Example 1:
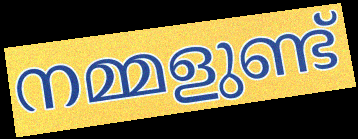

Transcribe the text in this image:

നമ്മളുണ്ട്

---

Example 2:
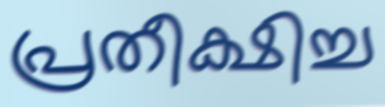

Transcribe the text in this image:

പ്രതീക്ഷിച്ച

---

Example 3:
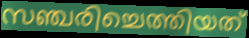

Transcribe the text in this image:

സഞ്ചരിച്ചെത്തിയത്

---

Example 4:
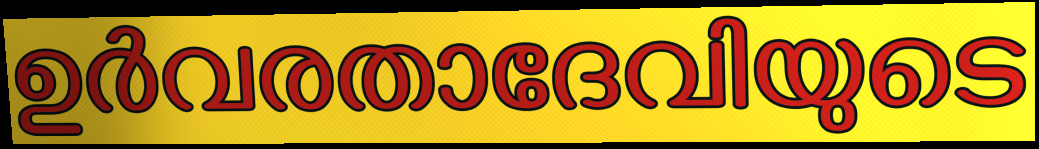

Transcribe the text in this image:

ഉർവരതാദേവിയുടെ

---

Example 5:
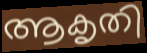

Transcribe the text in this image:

ആകൃതി